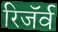
रिजॅर्व